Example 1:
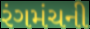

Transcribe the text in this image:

રંગમંચની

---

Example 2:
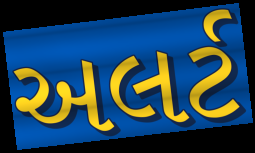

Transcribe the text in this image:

અલર્ટ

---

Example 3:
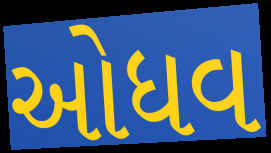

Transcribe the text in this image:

ઓધવ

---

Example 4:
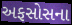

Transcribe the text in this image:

અફસોસના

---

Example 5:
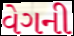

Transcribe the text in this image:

વેગની